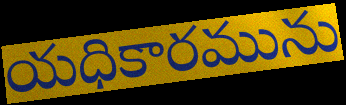
యధికారమును